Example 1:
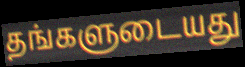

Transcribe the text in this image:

தங்களுடையது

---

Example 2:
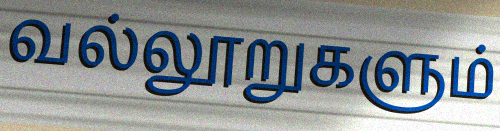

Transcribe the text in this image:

வல்லூறுகளும்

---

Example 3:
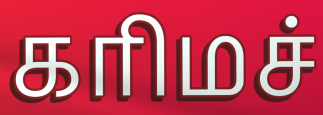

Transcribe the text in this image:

கரிமச்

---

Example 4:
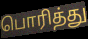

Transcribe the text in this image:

பொரித்து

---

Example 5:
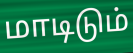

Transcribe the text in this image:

மாடிடும்